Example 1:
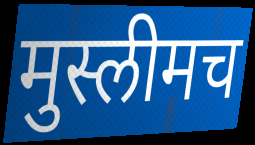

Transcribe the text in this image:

मुस्लीमच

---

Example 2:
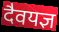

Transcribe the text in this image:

दैवयज्ञ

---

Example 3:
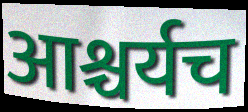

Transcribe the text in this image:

आश्चर्यच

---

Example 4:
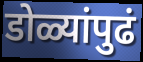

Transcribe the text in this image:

डोळ्यांपुढं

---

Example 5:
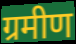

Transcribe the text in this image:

ग्रमीण